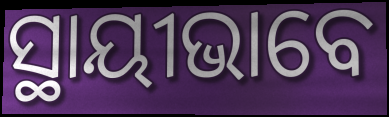
ସ୍ଥାୟୀଭାବେ